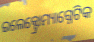
ଇଲେକ୍ଟ୍ରୋମ୍ୟାଗ୍ନେଟିକ